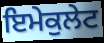
ਇਮੇਕੁਲੇਟ